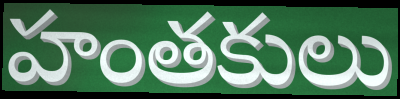
హంతకులు